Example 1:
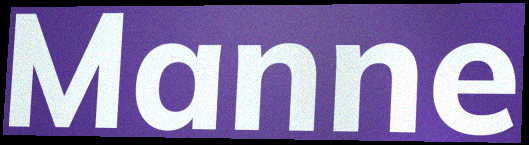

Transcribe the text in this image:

Manne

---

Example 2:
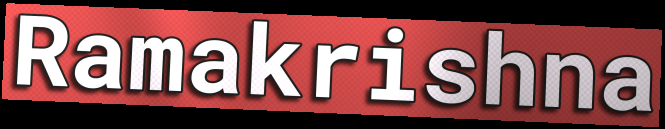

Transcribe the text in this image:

Ramakrishna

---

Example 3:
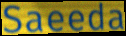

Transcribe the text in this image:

Saeeda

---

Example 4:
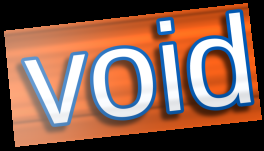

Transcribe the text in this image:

void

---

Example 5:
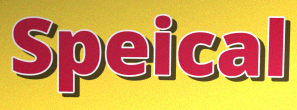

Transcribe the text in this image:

Speical